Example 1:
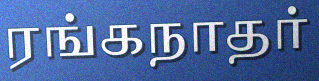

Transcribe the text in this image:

ரங்கநாதர்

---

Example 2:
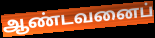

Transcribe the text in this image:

ஆண்டவனைப்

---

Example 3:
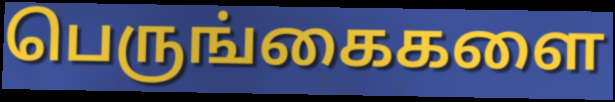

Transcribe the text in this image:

பெருங்கைகளை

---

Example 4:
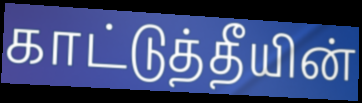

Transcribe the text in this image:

காட்டுத்தீயின்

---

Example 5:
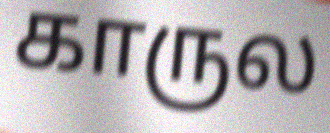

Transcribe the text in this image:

காருல